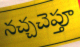
నచ్చచెప్తూ